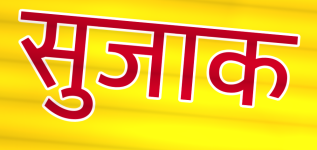
सुजाक